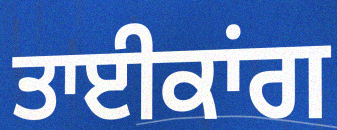
ਤਾਈਕਾਂਗ